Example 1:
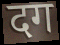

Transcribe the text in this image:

दग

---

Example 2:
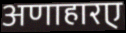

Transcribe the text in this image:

अणाहारए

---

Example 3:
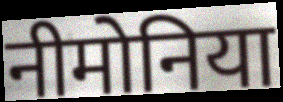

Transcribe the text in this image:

नीमोनिया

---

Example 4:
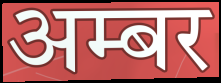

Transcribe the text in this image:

अम्‍बर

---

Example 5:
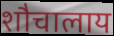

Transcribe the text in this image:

शौचालाय